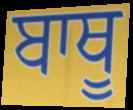
ਬਾਥੂ